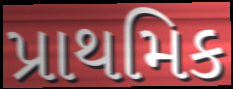
પ્રાથમિક